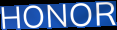
HONOR